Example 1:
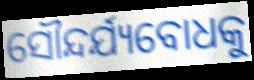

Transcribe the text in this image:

ସୌନ୍ଦର୍ଯ୍ୟବୋଧକୁ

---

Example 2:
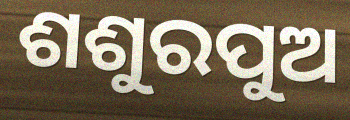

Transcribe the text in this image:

ଶଶୁରପୁଅ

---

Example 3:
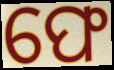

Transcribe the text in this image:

ଫେ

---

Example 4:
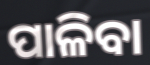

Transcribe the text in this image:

ପାଳିବା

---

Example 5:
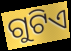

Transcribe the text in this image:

ଗୁଟିଏ